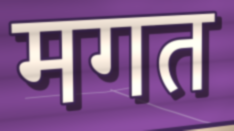
मगत